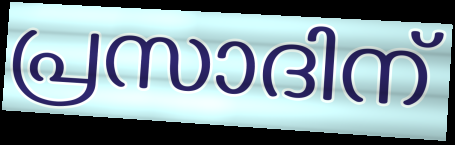
പ്രസാദിന്